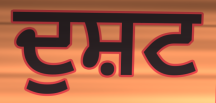
ਦੁਸ਼ਟ